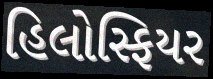
હિલોસ્ફિયર